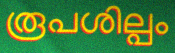
രൂപശില്പം